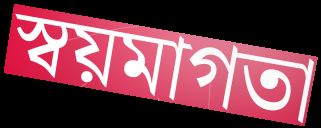
স্বয়মাগতা